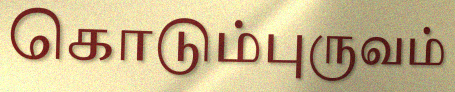
கொடும்புருவம்